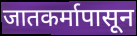
जातकर्मापासून